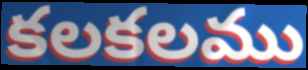
కలకలము